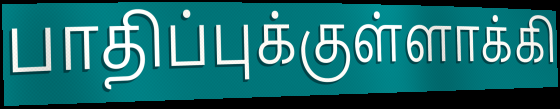
பாதிப்புக்குள்ளாக்கி